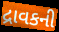
દ્રાવકની